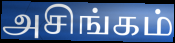
அசிங்கம்